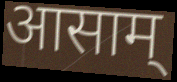
आसाम्